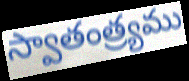
స్వాతంత్ర్యము